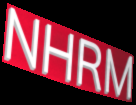
NHRM